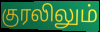
குரலிலும்